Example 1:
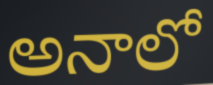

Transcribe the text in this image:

అనాలో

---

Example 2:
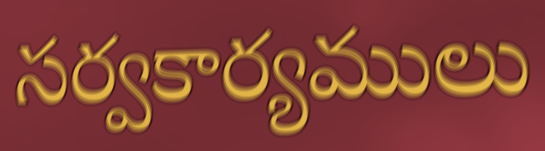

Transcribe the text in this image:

సర్వకార్యములు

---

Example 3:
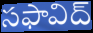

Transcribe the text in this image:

సఫావిద్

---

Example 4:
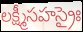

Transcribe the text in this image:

లక్ష్మీసహస్రైః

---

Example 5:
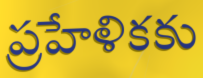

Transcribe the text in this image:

ప్రహేళికకు